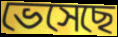
ভেসেছে